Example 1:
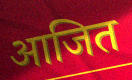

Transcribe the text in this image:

आजित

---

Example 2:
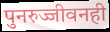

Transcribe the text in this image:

पुनरुज्जीवनही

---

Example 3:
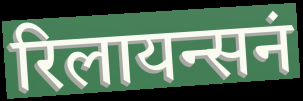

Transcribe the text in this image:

रिलायन्सनं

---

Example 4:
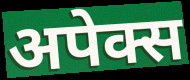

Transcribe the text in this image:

अपेक्स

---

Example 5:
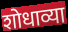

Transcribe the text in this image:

शोधाव्या